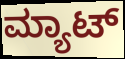
ಮ್ಯಾಟ್